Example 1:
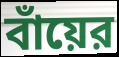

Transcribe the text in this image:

বাঁয়ের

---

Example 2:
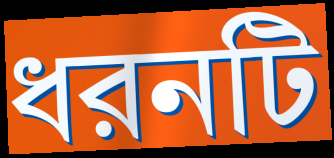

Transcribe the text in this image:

ধরনটি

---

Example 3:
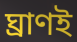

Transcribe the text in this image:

ঘ্রাণই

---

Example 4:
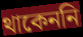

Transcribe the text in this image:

থাকেননি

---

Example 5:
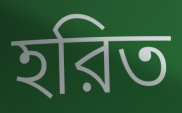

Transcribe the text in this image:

হরিত